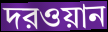
দরওয়ান